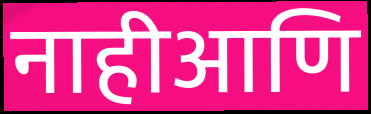
नाहीआणि